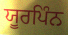
ਯੂਰਪਿੰਨ